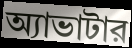
অ্যাভাটার